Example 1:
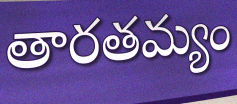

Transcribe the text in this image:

తారతమ్యం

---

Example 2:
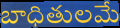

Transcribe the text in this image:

బాధితులమే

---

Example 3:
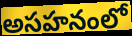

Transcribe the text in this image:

అసహనంలో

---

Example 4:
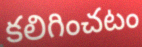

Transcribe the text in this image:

కలిగించటం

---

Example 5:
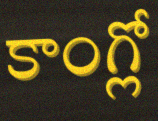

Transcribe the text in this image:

కాంగ్లో